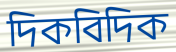
দিকবিদিক